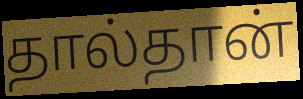
தால்தான்